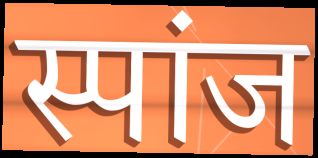
स्पांज